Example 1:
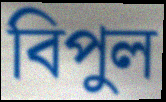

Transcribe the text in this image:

বিপুল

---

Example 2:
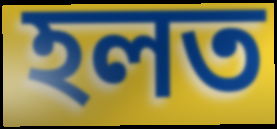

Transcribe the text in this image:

হলত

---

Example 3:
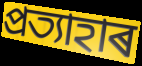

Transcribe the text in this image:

প্ৰত্যাহাৰ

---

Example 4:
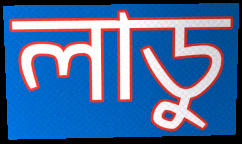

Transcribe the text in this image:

লাডু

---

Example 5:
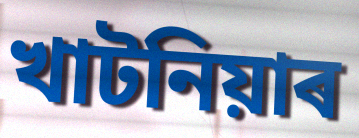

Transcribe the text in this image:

খাটনিয়াৰ